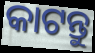
କାଟନ୍ତୁ